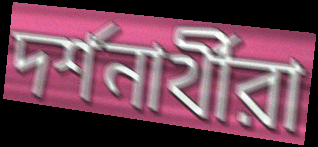
দর্শনার্থীরা